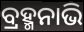
ବ୍ରହ୍ମନାଭି